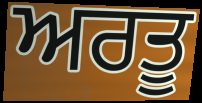
ਅਰਤੂ